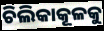
ଚିଲିକାକୂଳକୁ